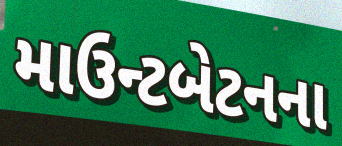
માઉન્ટબેટનના